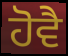
ਹੋਵੈ